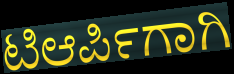
ಟಿಆರ್ಪಿಗಾಗಿ